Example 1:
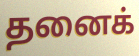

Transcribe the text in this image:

தனைக்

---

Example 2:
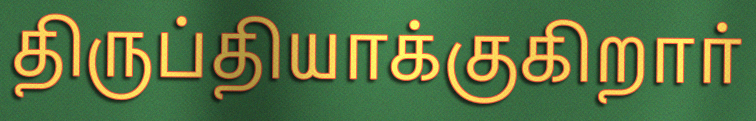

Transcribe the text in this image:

திருப்தியாக்குகிறார்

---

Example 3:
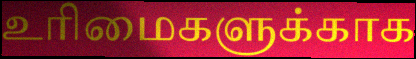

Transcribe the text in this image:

உரிமைகளுக்காக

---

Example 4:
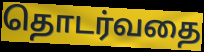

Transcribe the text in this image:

தொடர்வதை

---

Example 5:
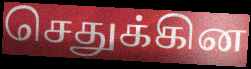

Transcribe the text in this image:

செதுக்கின